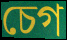
চেগ